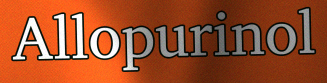
Allopurinol